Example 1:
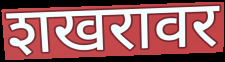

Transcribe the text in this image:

शखरावर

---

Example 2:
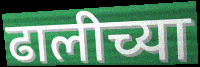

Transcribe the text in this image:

ढालीच्या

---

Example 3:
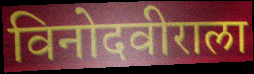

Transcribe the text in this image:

विनोदवीराला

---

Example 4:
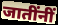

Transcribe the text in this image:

जातींनीं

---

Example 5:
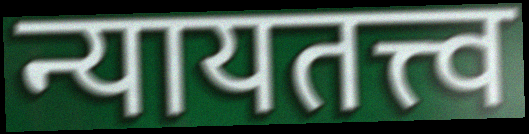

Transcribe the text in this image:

न्यायतत्त्व